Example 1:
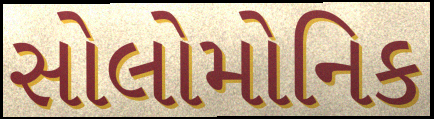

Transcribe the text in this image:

સોલોમોનિક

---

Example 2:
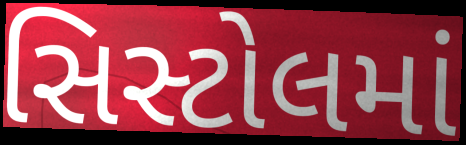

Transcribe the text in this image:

સિસ્ટોલમાં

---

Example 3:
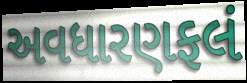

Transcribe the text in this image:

અવધારણફલં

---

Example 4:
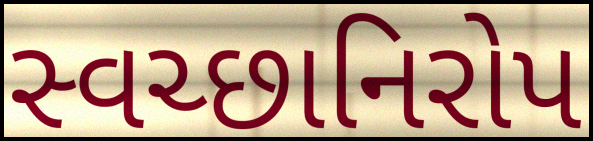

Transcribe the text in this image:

સ્વચ્છાનિરોપ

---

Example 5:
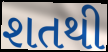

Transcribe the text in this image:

શતથી